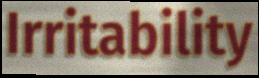
Irritability